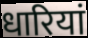
धारियां